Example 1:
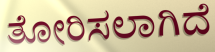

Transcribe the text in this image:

ತೋರಿಸಲಾಗಿದೆ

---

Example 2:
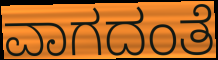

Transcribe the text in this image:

ವಾಗದಂತೆ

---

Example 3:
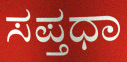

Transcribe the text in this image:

ಸಪ್ತಧಾ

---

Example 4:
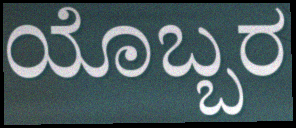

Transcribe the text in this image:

ಯೊಬ್ಬರ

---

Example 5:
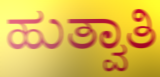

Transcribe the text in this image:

ಹುತ್ವಾತಿ